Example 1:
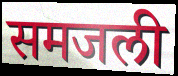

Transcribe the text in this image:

समजली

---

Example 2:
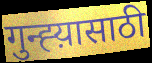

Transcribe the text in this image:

गुन्ह्य़ासाठी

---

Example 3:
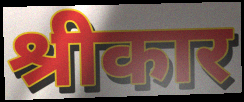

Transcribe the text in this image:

श्रीकार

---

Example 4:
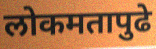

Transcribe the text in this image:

लोकमतापुढे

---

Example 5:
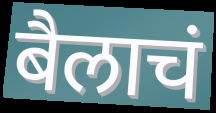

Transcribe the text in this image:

बैलाचं